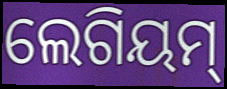
ଲେଗିୟମ୍